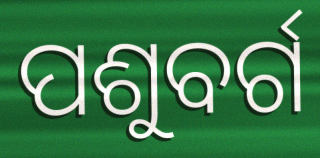
ପଶୁବର୍ଗ